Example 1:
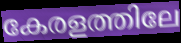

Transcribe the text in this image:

കേരളത്തിലേ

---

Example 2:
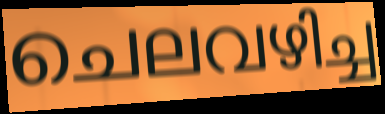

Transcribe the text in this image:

ചെലവഴിച്ച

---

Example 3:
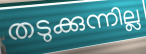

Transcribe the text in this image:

തടുക്കുന്നില്ല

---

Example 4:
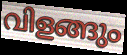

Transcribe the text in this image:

വിളങ്ങും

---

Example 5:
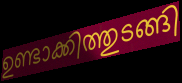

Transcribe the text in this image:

ഉണ്ടാക്കിത്തുടങ്ങി